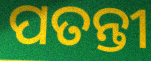
ପତନ୍ତୀ